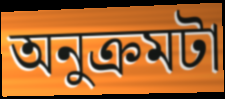
অনুক্রমটা